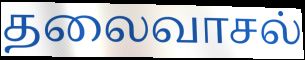
தலைவாசல்